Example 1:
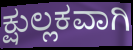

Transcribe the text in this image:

ಕ್ಷುಲ್ಲಕವಾಗಿ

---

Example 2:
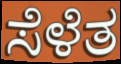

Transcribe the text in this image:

ಸೆಳೆತ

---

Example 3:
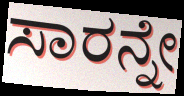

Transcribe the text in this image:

ಸಾರನ್ನೇ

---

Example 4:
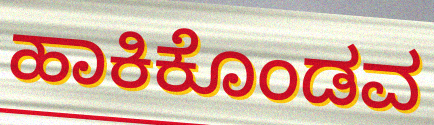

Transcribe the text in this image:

ಹಾಕಿಕೊಂಡವ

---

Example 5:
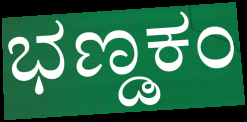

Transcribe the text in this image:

ಭಣ್ಡಕಂ